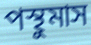
পস্থুমাস